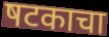
षटकाचा